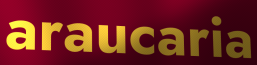
araucaria